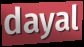
dayal